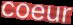
coeur